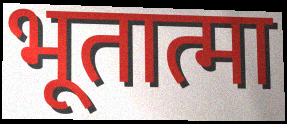
भूतात्मा